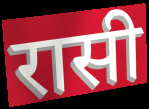
रासी